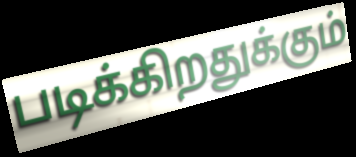
படிக்கிறதுக்கும்